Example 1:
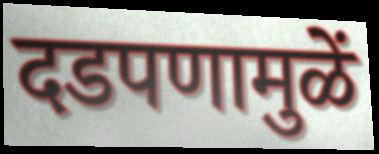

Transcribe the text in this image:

दडपणामुळें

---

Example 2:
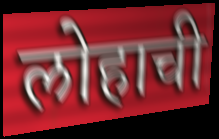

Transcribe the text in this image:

लोहाची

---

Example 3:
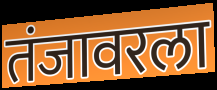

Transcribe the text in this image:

तंजावरला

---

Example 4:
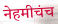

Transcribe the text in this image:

नेहमीचंच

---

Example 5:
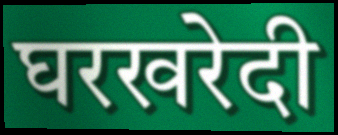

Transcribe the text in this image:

घरखरेदी